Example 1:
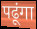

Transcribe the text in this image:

पढूंगा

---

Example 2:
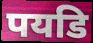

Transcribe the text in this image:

पयडि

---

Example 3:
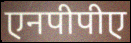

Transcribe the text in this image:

एनपीपीए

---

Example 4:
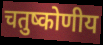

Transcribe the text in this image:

चतुष्कोणीय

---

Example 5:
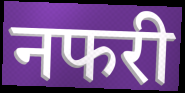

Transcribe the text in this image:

नफरी